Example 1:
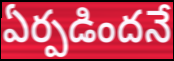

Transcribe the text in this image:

ఏర్పడిందనే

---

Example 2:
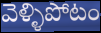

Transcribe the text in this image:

వెళ్ళిపోటం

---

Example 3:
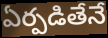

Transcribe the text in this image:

ఏర్పడితేనే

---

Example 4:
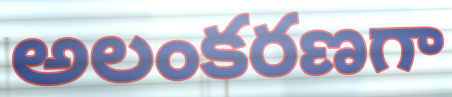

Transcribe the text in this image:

అలంకరణగా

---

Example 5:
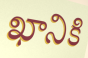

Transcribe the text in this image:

ఖానికి